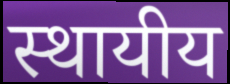
स्थायीय